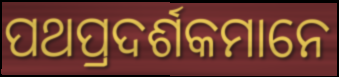
ପଥପ୍ରଦର୍ଶକମାନେ